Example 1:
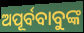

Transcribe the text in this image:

ଅପୂର୍ବବାବୁଙ୍କ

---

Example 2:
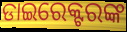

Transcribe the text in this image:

ଡାଇରେକ୍ଟରଙ୍କ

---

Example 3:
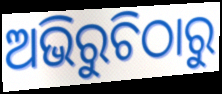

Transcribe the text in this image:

ଅଭିରୁଚିଠାରୁ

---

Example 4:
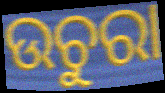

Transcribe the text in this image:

ଉଚୁରା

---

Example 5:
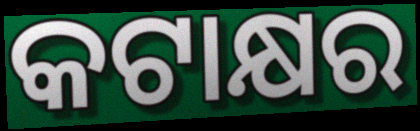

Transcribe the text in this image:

କଟାକ୍ଷର